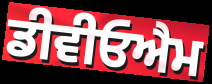
ਡੀਵੀਓਐਮ